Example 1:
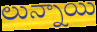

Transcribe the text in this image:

లున్నాయి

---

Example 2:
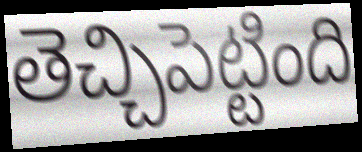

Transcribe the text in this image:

తెచ్చిపెట్టింది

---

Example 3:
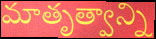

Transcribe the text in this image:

మాతృత్వాన్ని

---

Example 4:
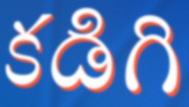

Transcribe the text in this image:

కడిగి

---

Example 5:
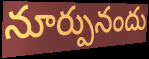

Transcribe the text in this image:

నూర్పునందు